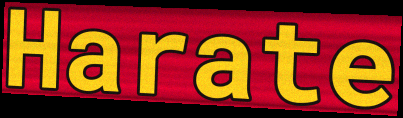
Harate